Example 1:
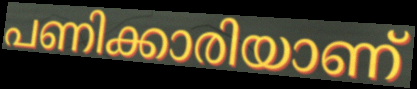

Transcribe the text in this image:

പണിക്കാരിയാണ്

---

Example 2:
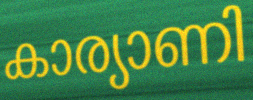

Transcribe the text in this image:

കാര്യാണി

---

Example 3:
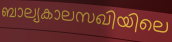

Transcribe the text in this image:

ബാല്യകാലസഖിയിലെ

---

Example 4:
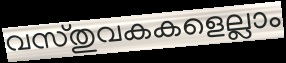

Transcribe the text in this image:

വസ്തുവകകളെല്ലാം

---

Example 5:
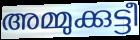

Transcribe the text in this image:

അമ്മുക്കുട്ടീ